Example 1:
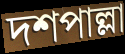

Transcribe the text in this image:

দশপাল্লা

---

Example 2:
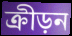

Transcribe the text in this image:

ক্রীড়ন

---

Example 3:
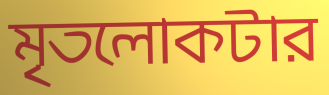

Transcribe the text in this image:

মৃতলোকটার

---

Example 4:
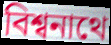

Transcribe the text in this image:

বিশ্বনাথে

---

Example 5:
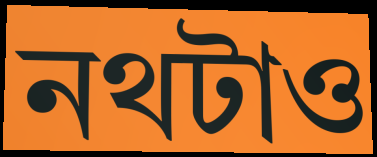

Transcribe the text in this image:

নথটাও